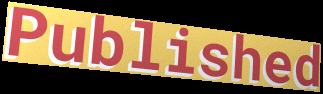
Published